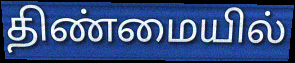
திண்மையில்